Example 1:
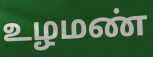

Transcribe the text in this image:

உழமண்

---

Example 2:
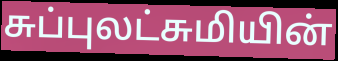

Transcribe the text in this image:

சுப்புலட்சுமியின்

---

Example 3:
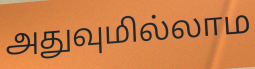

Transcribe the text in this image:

அதுவுமில்லாம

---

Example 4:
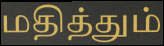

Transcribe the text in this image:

மதித்தும்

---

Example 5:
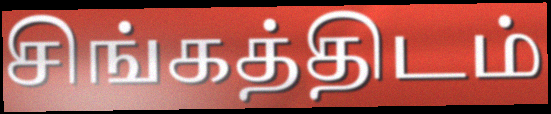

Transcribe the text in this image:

சிங்கத்திடம்